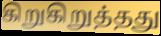
கிறுகிறுத்தது